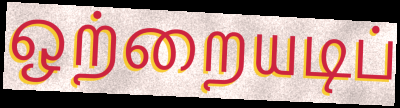
ஒற்றையடிப்